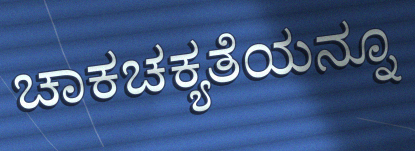
ಚಾಕಚಕ್ಯತೆಯನ್ನೂ